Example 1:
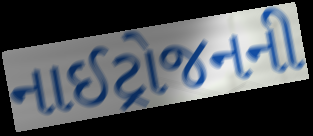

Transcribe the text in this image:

નાઈટ્રોજનની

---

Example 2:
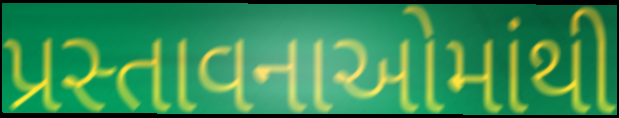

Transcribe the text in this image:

પ્રસ્તાવનાઓમાંથી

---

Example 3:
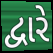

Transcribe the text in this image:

દ્વારે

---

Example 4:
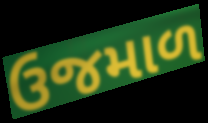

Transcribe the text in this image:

ઉજમાળ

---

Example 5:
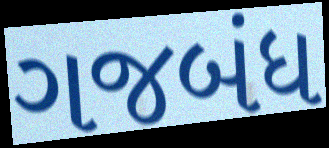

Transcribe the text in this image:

ગજબંધ